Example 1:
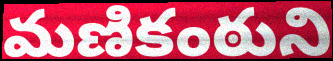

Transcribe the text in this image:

మణికంఠుని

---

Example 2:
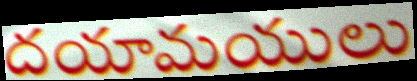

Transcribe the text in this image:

దయామయులు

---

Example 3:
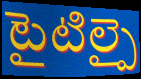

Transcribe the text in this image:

టైటిల్పై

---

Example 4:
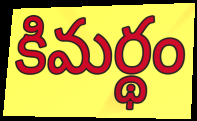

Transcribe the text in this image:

కిమర్థం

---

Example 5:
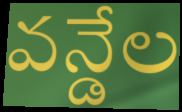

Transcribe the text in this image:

వన్డేల